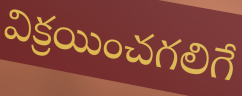
విక్రయించగలిగే